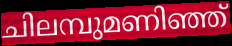
ചിലമ്പുമണിഞ്ഞ്